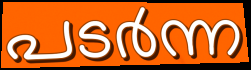
പടർന്ന